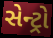
સેન્ટ્રો